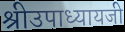
श्रीउपाध्यायजी